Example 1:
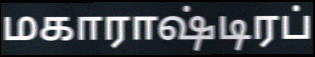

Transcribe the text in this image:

மகாராஷ்டிரப்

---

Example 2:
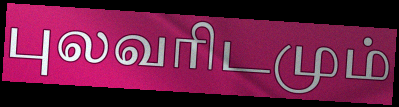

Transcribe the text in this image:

புலவரிடமும்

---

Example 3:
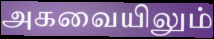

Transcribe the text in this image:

அகவையிலும்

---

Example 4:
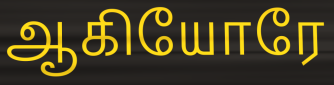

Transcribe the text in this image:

ஆகியோரே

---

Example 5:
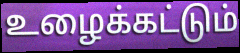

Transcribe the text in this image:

உழைக்கட்டும்